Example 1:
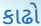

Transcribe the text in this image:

કાઢો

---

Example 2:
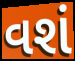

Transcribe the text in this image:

વશં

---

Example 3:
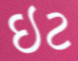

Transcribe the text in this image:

ઇટ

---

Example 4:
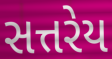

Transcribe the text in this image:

સત્તરેય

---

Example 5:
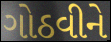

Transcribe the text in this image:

ગોઠવીને